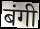
बंगी